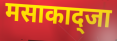
मसाकाद्जा